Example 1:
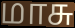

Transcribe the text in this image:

மாசு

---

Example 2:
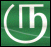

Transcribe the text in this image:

ரு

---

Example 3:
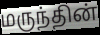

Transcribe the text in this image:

மருந்தின்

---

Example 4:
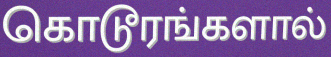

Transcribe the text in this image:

கொடூரங்களால்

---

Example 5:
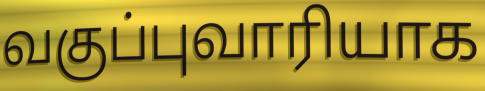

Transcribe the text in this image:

வகுப்புவாரியாக